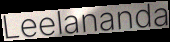
Leelananda